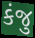
કંજુ